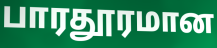
பாரதூரமான